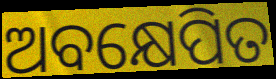
ଅବକ୍ଷେପିତ